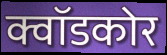
क्वॉडकोर